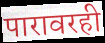
पारावरही